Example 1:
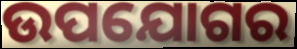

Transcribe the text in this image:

ଉପଯୋଗର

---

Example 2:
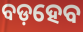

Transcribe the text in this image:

ବଡ଼ହେବ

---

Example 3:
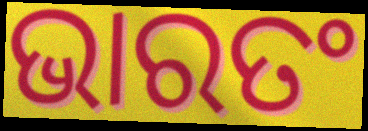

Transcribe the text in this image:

ଭାରତଂ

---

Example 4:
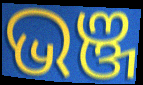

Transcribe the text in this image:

ଭଞ୍ଜ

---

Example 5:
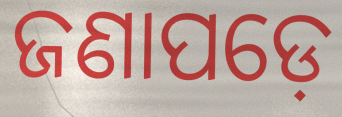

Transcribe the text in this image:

ଜଣାପଡ଼େ